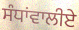
ਸੰਧਾਂਵਾਲੀਏ